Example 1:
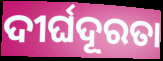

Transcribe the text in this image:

ଦୀର୍ଘଦୂରତା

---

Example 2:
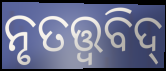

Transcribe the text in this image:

ନୃତତ୍ତ୍ଵବିଦ୍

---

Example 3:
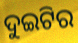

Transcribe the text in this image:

ଦୁଇଟିର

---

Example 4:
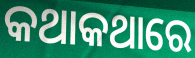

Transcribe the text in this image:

କଥାକଥାରେ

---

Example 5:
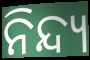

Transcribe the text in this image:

ନିନ୍ଦ୍ୟ